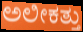
ಅಲೀಕತ್ತು